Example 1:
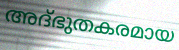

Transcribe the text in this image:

അദ്ഭുതകരമായ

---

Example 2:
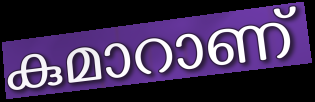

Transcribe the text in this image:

കുമാറാണ്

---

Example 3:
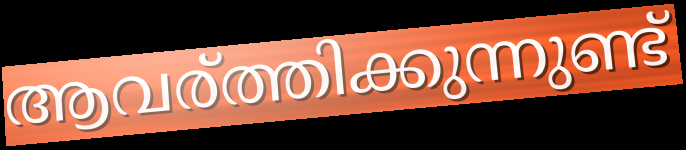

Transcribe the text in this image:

ആവര്ത്തിക്കുന്നുണ്ട്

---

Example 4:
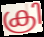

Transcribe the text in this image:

ക്രി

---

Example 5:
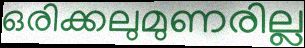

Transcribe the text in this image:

ഒരിക്കലുമുണരില്ല